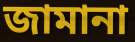
জামানা